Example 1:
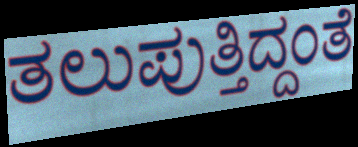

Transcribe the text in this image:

ತಲುಪುತ್ತಿದ್ದಂತೆ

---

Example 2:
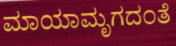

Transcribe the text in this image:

ಮಾಯಾಮೃಗದಂತೆ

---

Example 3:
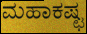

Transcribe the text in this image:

ಮಹಾಕಷ್ಟ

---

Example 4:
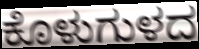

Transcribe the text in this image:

ಕೊಳುಗುಳದ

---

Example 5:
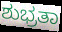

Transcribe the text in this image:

ಶುಭ್ರತಾ